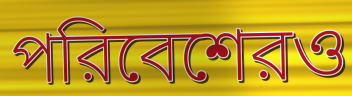
পরিবেশেরও